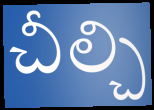
చీల్చి